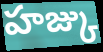
హజ్కు